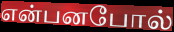
என்பனபோல்